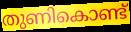
തുണികൊണ്ട്